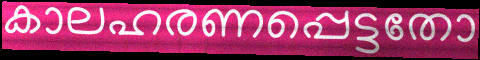
കാലഹരണപ്പെട്ടതോ